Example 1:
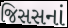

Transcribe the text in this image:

જિસસનાં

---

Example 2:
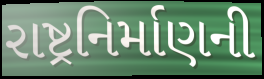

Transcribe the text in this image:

રાષ્ટ્રનિર્માણની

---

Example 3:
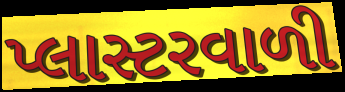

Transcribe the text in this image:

પ્લાસ્ટરવાળી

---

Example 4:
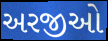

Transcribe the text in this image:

અરજીઓ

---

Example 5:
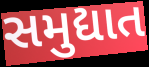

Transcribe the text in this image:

સમુદ્યાત